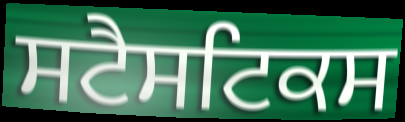
ਸਟੈਸਟਿਕਸ